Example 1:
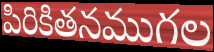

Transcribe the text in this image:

పిరికితనముగల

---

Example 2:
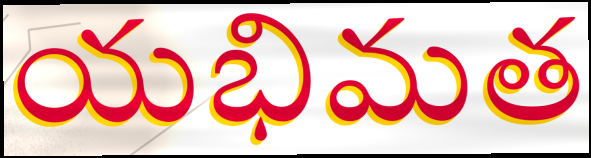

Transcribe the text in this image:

యభిమత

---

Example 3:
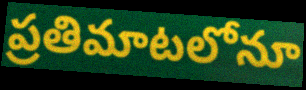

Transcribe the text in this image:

ప్రతిమాటలోనూ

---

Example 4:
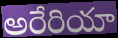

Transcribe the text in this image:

అరేరియా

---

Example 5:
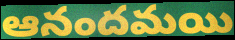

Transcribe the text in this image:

ఆనందమయి